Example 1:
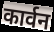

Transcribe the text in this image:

कार्वन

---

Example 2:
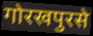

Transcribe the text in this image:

गोरखपुरसे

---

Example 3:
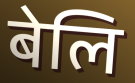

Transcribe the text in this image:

बेलि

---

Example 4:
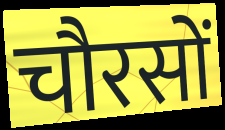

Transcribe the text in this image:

चौरसों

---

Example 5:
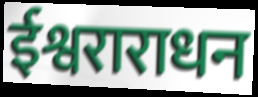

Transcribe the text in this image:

ईश्वराराधन